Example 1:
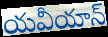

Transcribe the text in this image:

యవీయాన్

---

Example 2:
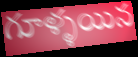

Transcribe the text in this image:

గూళ్ళయిన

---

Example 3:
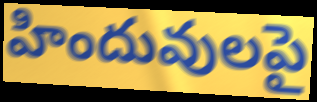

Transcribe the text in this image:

హిందువులపై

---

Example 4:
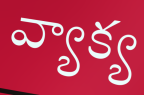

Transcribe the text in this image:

వ్యాక్య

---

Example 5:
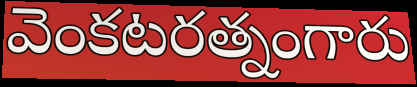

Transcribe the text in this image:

వెంకటరత్నంగారు